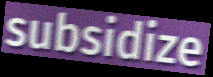
subsidize